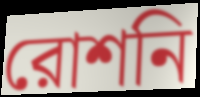
রোশনি